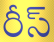
రీస్